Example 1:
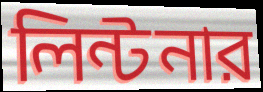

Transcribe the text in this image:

লিন্টনার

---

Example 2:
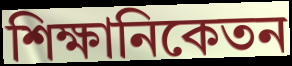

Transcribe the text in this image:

শিক্ষানিকেতন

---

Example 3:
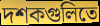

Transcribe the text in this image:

দশকগুলিতে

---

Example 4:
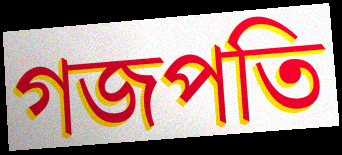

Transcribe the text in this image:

গজপতি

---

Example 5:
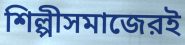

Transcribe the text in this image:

শিল্পীসমাজেরই